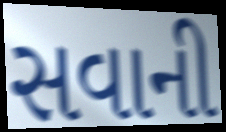
સવાની